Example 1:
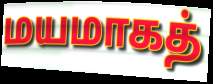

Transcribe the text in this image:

மயமாகத்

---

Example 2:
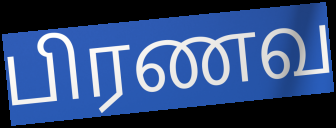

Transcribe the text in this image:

பிரணவ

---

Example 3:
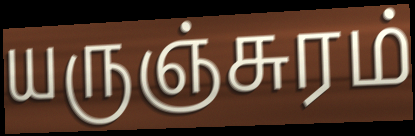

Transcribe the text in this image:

யருஞ்சுரம்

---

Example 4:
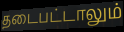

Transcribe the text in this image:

தடைபட்டாலும்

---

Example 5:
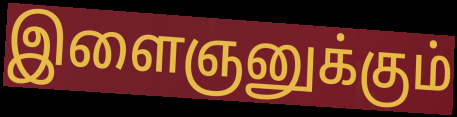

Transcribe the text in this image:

இளைஞனுக்கும்